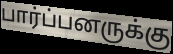
பார்ப்பனருக்கு